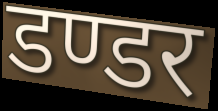
डण्डर